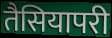
तैसियापरी